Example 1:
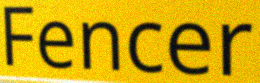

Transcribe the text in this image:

Fencer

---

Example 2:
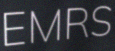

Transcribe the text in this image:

EMRS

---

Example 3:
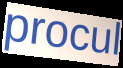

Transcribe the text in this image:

procul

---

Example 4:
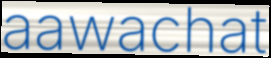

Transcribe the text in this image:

aawachat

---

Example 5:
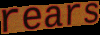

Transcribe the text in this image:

rears